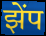
झेंप